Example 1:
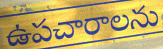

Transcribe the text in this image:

ఉపచారాలను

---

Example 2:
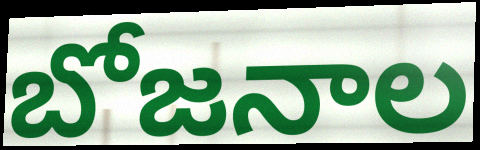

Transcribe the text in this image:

బోజనాల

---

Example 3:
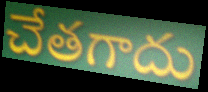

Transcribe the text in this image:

చేతగాదు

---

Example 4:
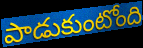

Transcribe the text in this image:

పాడుకుంటోంది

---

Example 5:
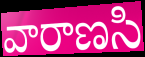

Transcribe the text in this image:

వారాణసి